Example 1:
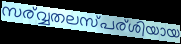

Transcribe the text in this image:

സര്വ്വതലസ്പര്ശിയായ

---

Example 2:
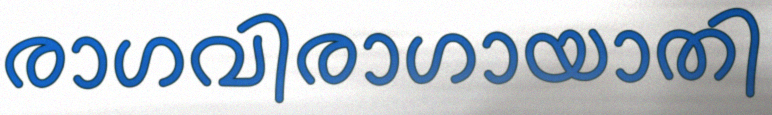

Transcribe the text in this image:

രാഗവിരാഗായാതി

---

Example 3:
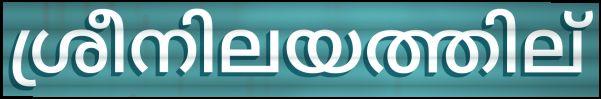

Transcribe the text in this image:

ശ്രീനിലയത്തില്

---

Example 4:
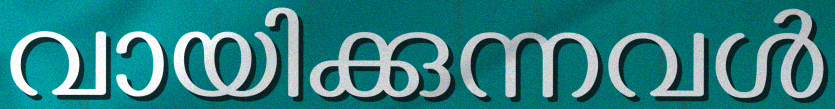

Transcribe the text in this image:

വായിക്കുന്നവൾ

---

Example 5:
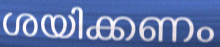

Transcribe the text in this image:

ശയിക്കണം